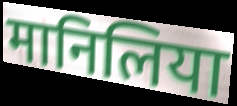
मानिलिया